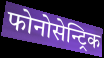
फोनोसेन्ट्रिक